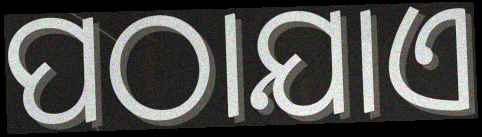
ପଠାଯାଏ